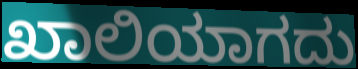
ಖಾಲಿಯಾಗದು